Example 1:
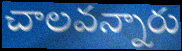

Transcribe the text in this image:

చాలవన్నారు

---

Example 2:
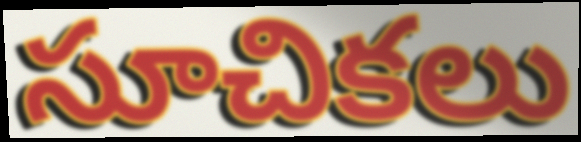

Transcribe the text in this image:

సూచికలు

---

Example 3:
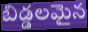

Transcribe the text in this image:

బిడ్డలమైన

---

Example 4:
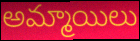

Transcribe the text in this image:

అమ్మాయిలు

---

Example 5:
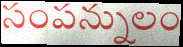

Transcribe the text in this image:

సంపన్నులం